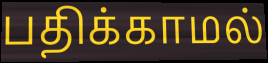
பதிக்காமல்